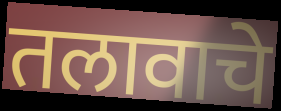
तलावाचे